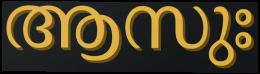
ആസുഃ